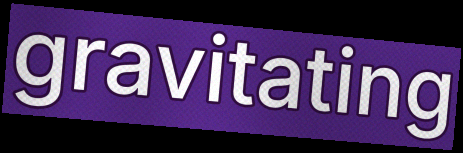
gravitating